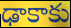
ఢాకాకు